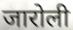
जारोली